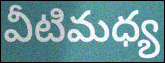
వీటిమధ్య